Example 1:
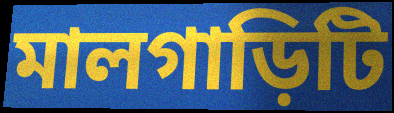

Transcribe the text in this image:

মালগাড়িটি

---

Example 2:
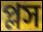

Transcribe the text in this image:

প্লস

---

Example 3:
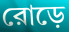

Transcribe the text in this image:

রোড়ে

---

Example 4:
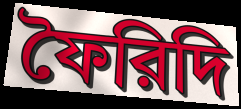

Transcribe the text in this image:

ফৈরিদি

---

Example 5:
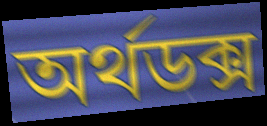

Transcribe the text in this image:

অর্থডক্স